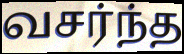
வசர்ந்த